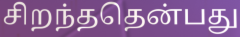
சிறந்ததென்பது